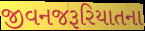
જીવનજરૂરિયાતના